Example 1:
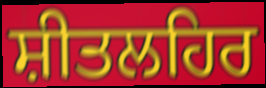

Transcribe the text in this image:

ਸ਼ੀਤਲਹਿਰ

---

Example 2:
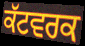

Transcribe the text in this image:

ਕੱਟਵਰਕ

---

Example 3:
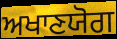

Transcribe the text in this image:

ਅਖਾਣਯੋਗ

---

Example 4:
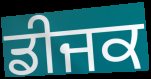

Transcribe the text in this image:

ਡੀਜਕ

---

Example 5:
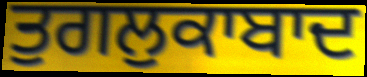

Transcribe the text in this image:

ਤੁਗਲੁਕਾਬਾਦ